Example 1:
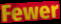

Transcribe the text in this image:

Fewer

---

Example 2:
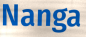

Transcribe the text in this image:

Nanga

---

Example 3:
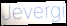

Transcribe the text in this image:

Jevergi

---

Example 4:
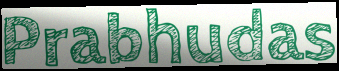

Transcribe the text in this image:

Prabhudas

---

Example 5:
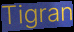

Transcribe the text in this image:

Tigran